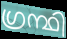
ഗ്രന്ഥി